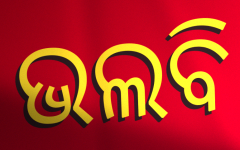
ଭଲବି